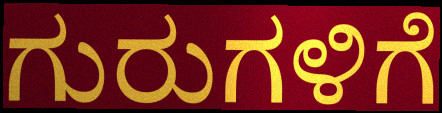
ಗುರುಗಳಿಗೆ